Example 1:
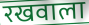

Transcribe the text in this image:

रखवाला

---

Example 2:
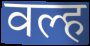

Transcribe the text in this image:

वल्ह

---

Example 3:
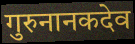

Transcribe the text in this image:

गुरुनानकदेव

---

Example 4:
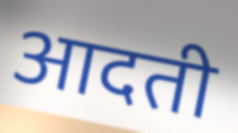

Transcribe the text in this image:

आदती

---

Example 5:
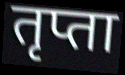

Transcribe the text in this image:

तृप्ता